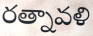
రత్నావళి